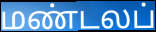
மண்டலப்